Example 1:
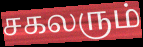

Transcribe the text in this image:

சகலரும்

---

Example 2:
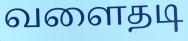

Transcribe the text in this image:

வளைதடி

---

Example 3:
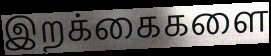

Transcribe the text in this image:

இறக்கைகளை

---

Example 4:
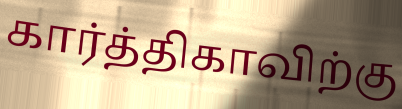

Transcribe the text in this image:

கார்த்திகாவிற்கு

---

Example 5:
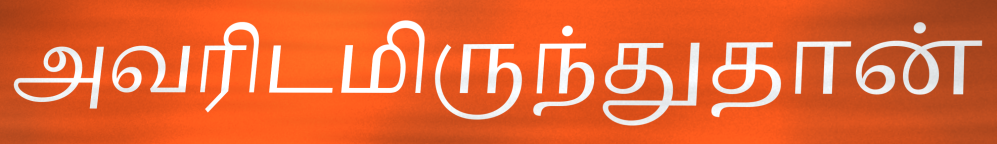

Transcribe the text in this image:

அவரிடமிருந்துதான்